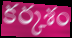
కర్కశం